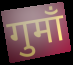
गुमाँ